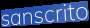
sanscrito